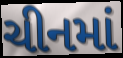
ચીનમાં